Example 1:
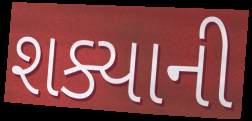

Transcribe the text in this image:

શક્યાની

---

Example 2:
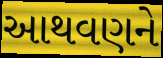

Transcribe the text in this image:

આથવણને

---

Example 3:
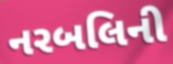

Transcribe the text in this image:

નરબલિની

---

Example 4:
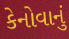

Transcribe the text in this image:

કેનોવાનું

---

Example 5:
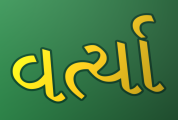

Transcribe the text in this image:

વર્ત્યા